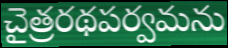
చైత్రరథపర్వమను